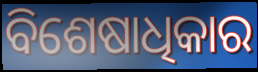
ବିଶେଷାଧିକାର